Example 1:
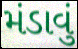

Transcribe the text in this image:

મંડાવું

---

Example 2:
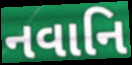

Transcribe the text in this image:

નવાનિ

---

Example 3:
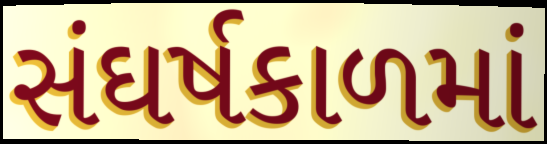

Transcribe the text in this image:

સંઘર્ષકાળમાં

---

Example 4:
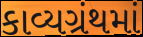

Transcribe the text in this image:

કાવ્યગ્રંથમાં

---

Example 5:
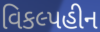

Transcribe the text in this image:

વિકલ્પહીન